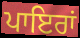
ਪਾਇਰਾਂ